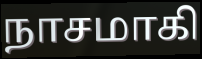
நாசமாகி